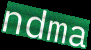
ndma